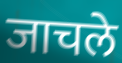
जाचले